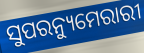
ସୁପରନ୍ୟୁମେରାରୀ